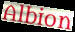
Albion